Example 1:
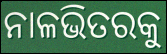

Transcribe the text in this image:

ନାଳଭିତରକୁ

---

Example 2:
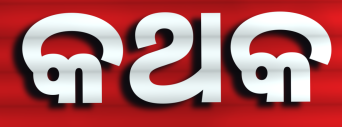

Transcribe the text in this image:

କଥକ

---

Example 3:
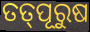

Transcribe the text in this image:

ତତ୍‌ପୂରୁଷ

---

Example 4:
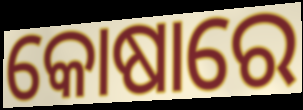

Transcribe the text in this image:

କୋଷାରେ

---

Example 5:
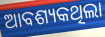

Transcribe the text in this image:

ଆବଶ୍ୟକଥିଲା